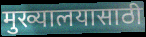
मुख्यालयासाठी